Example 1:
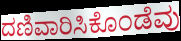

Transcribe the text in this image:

ದಣಿವಾರಿಸಿಕೊಂಡೆವು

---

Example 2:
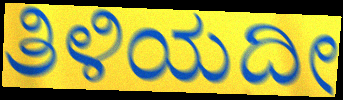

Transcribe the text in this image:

ತಿಳಿಯದೀ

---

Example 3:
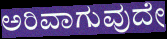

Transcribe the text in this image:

ಅರಿವಾಗುವುದೇ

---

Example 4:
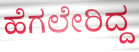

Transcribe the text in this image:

ಹೆಗಲೇರಿದ್ದ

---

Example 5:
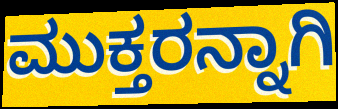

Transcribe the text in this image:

ಮುಕ್ತರನ್ನಾಗಿ